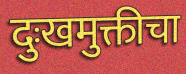
दुःखमुक्तीचा